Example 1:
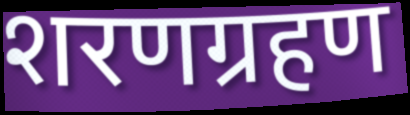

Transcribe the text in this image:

शरणग्रहण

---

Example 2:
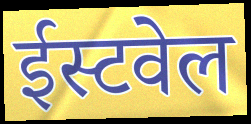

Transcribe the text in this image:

ईस्टवेल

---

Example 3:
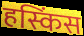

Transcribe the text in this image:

हस्किंस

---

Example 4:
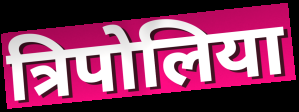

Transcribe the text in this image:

त्रिपोलिया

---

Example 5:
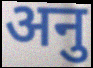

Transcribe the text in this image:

अनु